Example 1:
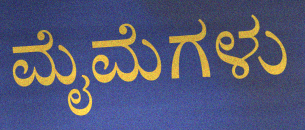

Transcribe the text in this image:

ಮೈಮೆಗಳು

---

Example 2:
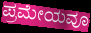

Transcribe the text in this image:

ಪ್ರಮೇಯವೂ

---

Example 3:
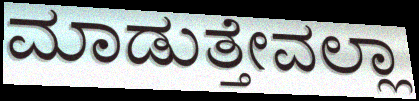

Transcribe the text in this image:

ಮಾಡುತ್ತೇವಲ್ಲಾ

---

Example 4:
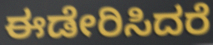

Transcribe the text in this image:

ಈಡೇರಿಸಿದರೆ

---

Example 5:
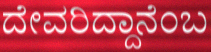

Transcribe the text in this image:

ದೇವರಿದ್ದಾನೆಂಬ